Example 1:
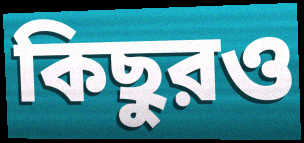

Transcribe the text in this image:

কিছুরও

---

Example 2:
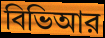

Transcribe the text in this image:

বিভিআর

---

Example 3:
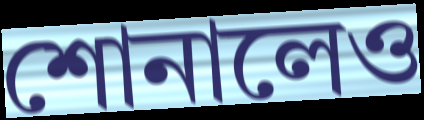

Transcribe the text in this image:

শোনালেও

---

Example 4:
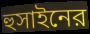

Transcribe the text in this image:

হুসাইনের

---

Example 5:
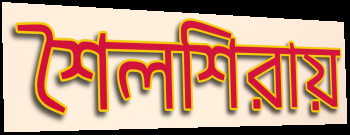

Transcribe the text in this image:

শৈলশিরায়